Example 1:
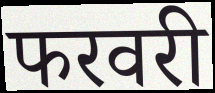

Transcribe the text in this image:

फरवरी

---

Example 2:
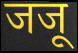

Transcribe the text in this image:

जजू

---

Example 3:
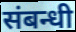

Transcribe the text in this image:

संबन्धी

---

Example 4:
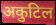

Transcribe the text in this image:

अकुटिल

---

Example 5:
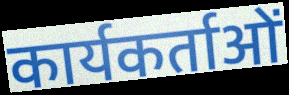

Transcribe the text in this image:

कार्यकर्ताओं